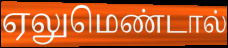
ஏலுமெண்டால்